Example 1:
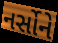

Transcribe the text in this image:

નર્સોને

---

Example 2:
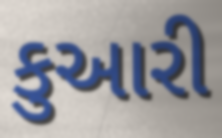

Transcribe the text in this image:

કુઆરી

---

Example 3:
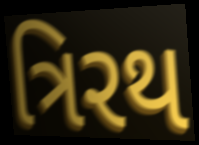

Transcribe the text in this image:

ત્રિરથ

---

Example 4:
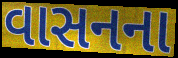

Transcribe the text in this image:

વાસનના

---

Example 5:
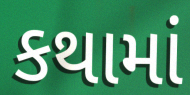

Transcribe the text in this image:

કથામાં